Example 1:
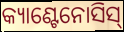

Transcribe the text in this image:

କ୍ୟାଣ୍ଟେନୋସିସ୍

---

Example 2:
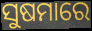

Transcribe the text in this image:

ସୁଷମାରେ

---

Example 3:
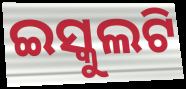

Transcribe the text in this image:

ଇସ୍କୁଲଟି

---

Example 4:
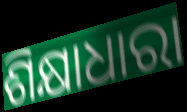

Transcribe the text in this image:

ଶିକ୍ଷାଧାରା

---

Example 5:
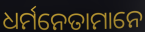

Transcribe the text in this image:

ଧର୍ମନେତାମାନେ